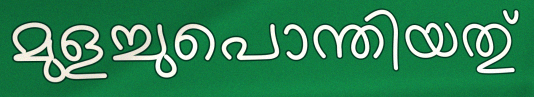
മുളച്ചുപൊന്തിയതു്